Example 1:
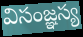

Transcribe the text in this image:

విసంజ్ఞస్య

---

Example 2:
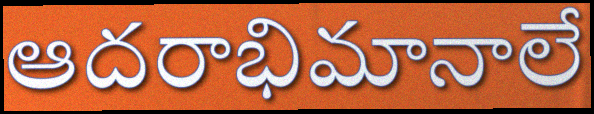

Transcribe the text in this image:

ఆదరాభిమానాలే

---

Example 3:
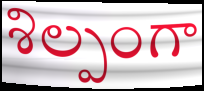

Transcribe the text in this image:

శిల్పంగా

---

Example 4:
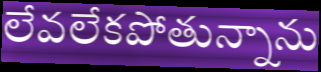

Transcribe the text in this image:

లేవలేకపోతున్నాను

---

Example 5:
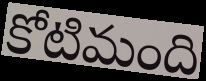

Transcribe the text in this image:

కోటిమంది